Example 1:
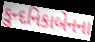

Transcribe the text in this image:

કુન્દનિકાબેનના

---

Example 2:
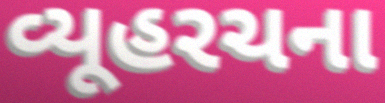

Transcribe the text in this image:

વ્યૂહરચના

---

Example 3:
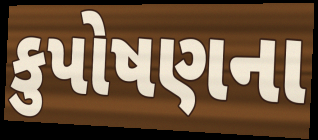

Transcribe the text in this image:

કુપોષણના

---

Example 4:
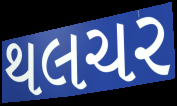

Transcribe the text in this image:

થલચર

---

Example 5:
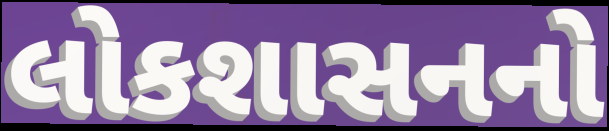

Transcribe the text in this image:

લોકશાસનનો